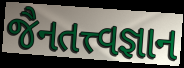
જૈનતત્ત્વજ્ઞાન